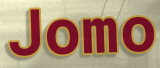
Jomo